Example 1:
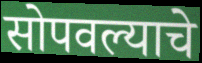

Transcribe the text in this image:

सोपवल्याचे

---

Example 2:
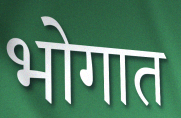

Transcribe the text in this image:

भोगात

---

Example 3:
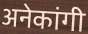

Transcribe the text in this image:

अनेकांगी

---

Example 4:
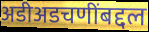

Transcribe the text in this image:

अडीअडचणींबद्दल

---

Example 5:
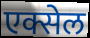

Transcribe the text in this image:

एक्सेल